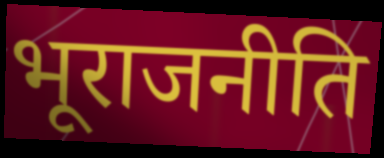
भूराजनीति